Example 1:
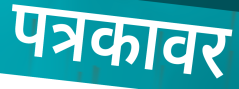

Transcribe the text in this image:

पत्रकावर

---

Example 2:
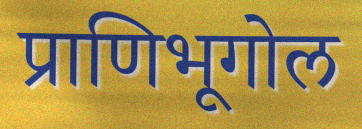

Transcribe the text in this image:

प्राणिभूगोल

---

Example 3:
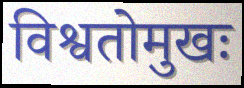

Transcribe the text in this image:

विश्वतोमुखः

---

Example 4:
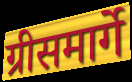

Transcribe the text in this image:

ग्रीसमार्गे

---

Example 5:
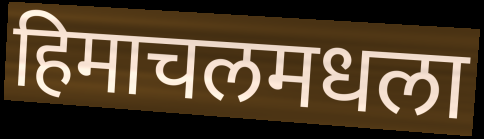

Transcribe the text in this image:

हिमाचलमधला